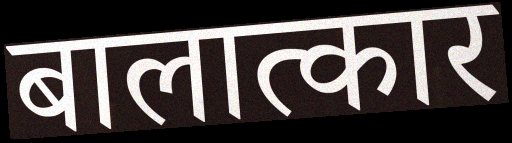
बालात्कार